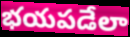
భయపడేలా